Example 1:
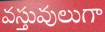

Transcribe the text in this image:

వస్తువులుగా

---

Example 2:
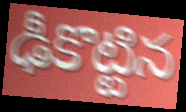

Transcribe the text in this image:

ఢీకొట్టిన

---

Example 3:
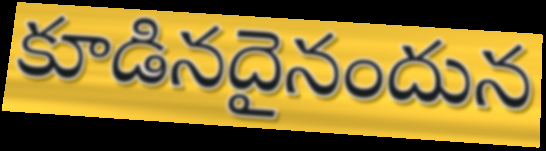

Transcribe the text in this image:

కూడినదైనందున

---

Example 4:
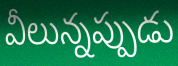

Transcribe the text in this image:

వీలున్నప్పుడు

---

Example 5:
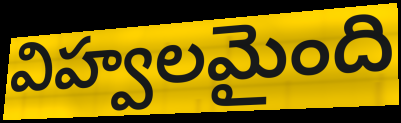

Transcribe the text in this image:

విహ్వలమైంది